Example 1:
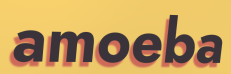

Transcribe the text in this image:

amoeba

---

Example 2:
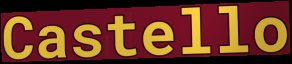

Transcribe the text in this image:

Castello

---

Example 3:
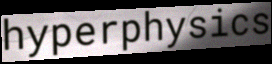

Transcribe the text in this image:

hyperphysics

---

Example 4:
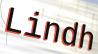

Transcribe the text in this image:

Lindh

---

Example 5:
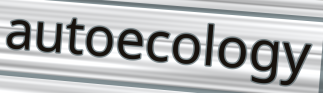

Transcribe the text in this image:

autoecology